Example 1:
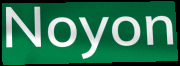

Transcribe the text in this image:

Noyon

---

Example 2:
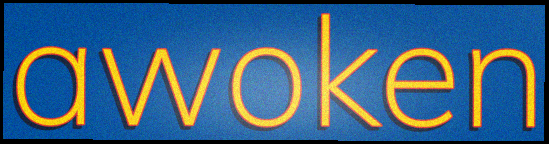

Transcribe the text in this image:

awoken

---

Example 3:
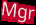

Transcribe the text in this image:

Mgr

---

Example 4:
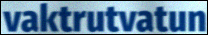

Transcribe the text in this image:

vaktrutvatun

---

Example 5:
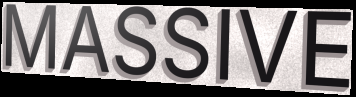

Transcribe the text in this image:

MASSIVE